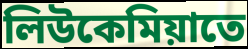
লিউকেমিয়াতে